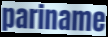
pariname